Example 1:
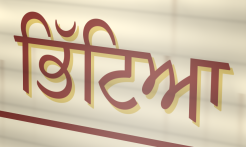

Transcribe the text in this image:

ਭਿੱਟਿਆ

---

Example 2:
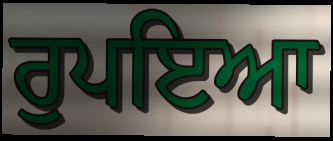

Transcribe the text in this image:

ਰੁਪਇਆ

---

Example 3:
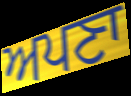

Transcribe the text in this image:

ਅਪਣਾ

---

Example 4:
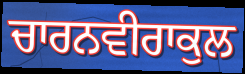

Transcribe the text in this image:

ਚਾਰਨਵੀਰਾਕੁਲ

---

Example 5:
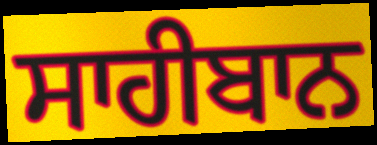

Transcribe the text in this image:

ਸਾਹੀਬਾਨ